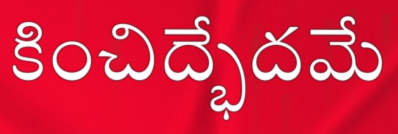
కించిద్భేదమే